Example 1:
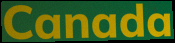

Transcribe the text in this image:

Canada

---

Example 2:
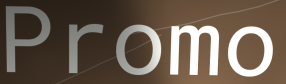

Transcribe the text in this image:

Promo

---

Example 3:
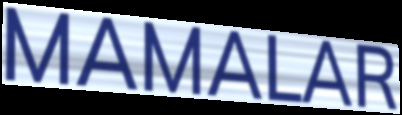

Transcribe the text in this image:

MAMALAR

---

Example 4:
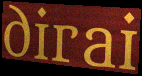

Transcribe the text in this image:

dirai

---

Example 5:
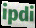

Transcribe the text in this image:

ipdi